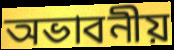
অভাবনীয়